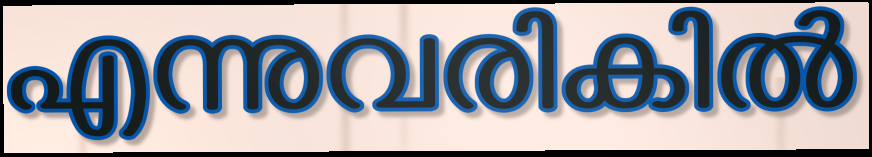
എന്നുവരികിൽ